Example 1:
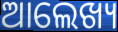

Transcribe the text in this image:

ଆଲେଖ୍ୟ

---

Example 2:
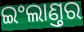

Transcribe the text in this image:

ଇଂଲାଣ୍ତର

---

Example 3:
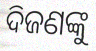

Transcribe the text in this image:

ଦିଜଣଙ୍କୁ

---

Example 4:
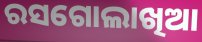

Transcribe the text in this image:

ରସଗୋଲାଖିଆ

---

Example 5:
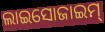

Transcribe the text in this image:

ଲାଇସୋଜାଇମ୍